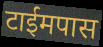
टाईमपास